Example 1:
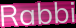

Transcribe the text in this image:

Rabbi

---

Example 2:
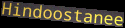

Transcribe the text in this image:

Hindoostanee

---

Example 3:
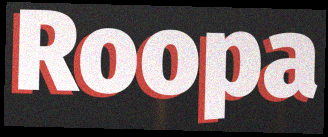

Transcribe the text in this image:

Roopa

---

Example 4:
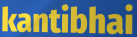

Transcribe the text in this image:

kantibhai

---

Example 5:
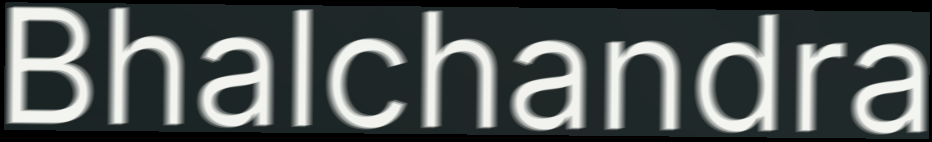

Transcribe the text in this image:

Bhalchandra